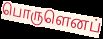
பொருளெனப்